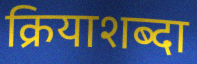
क्रियाशब्दा